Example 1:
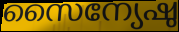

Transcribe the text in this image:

സൈന്യേഷു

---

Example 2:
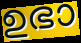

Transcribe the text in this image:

ഉഭാ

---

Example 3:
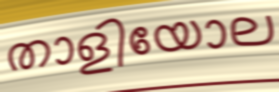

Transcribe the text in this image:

താളിയോല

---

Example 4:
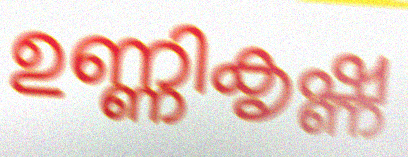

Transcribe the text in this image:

ഉണ്ണികൃഷ്ണ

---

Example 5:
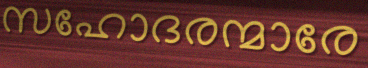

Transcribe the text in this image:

സഹോദരന്മാരേ